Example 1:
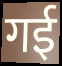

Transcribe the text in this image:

गई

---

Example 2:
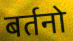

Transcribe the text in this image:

बर्तनो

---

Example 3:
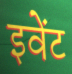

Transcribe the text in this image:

इवेंट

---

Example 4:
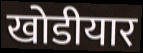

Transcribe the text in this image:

खोडीयार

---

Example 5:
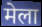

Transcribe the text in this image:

मेला